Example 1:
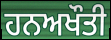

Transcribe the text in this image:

ਹਨਅਖੌਤੀ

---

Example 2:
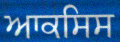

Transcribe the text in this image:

ਆਕਸਿਸ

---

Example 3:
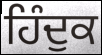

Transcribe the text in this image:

ਹਿੰਦੁਕ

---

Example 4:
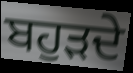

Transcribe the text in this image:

ਬਹੁੜਦੇ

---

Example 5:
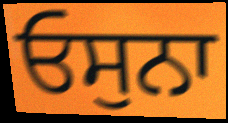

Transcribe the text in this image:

ਓਸੁਨਾ